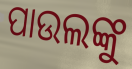
ପାଉଲଙ୍କୁ